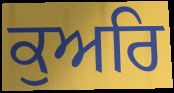
ਕੁਅਰਿ